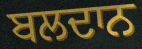
ਬਲਦਾਨ